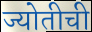
ज्योतीची